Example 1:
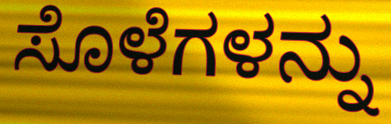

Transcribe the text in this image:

ಸೊಳೆಗಳನ್ನು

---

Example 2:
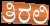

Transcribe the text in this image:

ತಿರಲಿ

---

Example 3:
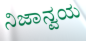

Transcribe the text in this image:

ನಿಜಾನ್ವಯ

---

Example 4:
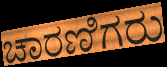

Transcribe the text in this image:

ಚಾರಣಿಗರು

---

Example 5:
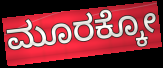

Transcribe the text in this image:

ಮೂರಕ್ಕೋ